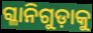
ଗ୍ଳାନିଗୁଡ଼ାକୁ